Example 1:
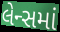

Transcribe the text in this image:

લેન્સમાં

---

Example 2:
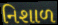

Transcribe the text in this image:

નિશાળ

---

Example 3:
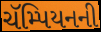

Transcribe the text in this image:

ચૅમ્પિયનની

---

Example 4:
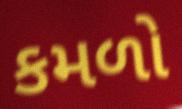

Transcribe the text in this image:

કમળો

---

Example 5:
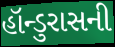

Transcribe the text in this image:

હૉન્ડુરાસની